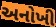
અનોખી